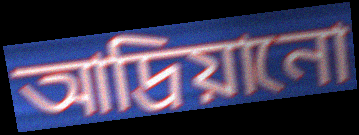
আদ্রিয়ানো